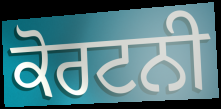
ਕੋਰਟਨੀ